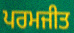
ਪਰਮਜੀਤ